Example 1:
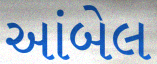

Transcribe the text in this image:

આંબેલ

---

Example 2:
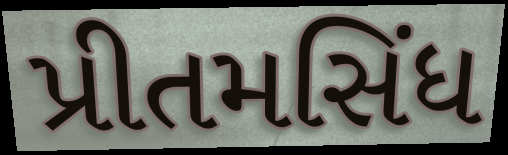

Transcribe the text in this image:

પ્રીતમસિંધ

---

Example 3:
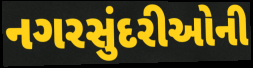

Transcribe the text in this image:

નગરસુંદરીઓની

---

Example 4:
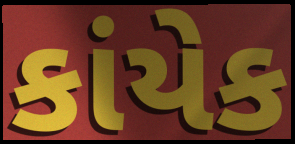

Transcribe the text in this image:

કાંયેક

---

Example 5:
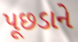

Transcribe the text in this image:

પૂછડાને